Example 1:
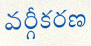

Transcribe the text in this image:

వర్గీకరణ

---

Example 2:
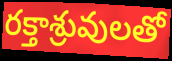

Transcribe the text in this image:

రక్తాశ్రువులతో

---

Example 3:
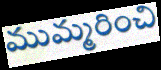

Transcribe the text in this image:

ముమ్మరించి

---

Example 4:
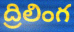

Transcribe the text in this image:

ద్రిలింగ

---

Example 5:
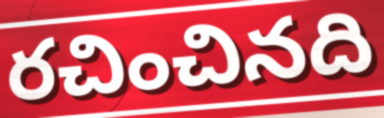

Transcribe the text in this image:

రచించినది